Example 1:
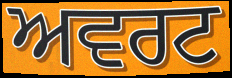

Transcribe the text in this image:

ਅਵਰਟ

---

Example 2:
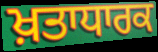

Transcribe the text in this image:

ਖ਼ਤਾਧਾਰਕ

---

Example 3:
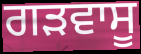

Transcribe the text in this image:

ਗੜਵਾਸੂ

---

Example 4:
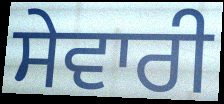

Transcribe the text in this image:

ਸੇਵਾਰੀ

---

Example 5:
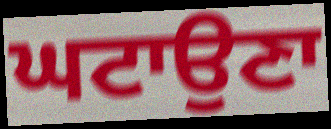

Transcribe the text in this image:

ਘਟਾਉਣਾ